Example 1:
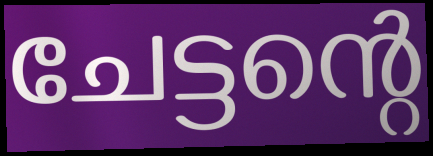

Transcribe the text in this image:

ചേട്ടന്റെ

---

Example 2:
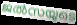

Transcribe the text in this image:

ജൽസയുടെ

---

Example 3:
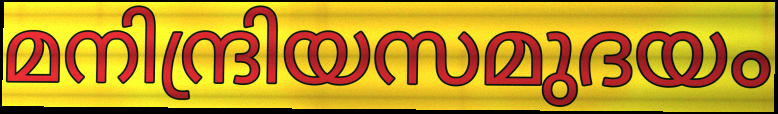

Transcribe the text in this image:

മനിന്ദ്രിയസമുദയം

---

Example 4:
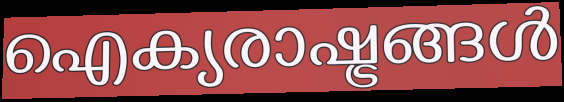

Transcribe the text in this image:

ഐക്യരാഷ്ട്രങ്ങൾ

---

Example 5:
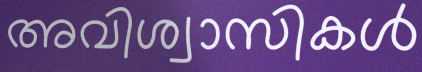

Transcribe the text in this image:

അവിശ്വാസികൾ